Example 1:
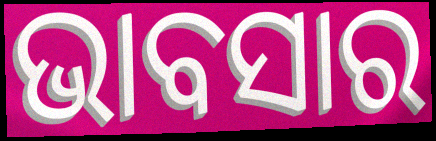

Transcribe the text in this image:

ଭାବସାର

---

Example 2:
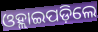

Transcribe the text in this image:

ଓହ୍ଲାଇପଡ଼ିଲେ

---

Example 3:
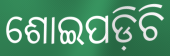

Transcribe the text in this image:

ଶୋଇପଡ଼ିଚି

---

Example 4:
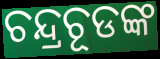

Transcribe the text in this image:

ଚନ୍ଦ୍ରଚୂଡଙ୍କ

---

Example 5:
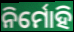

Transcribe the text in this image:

ନିର୍ମୋହି